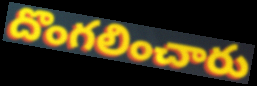
దొంగలించారు